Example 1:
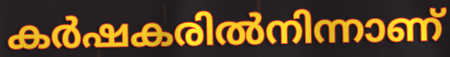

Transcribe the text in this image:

കർഷകരിൽനിന്നാണ്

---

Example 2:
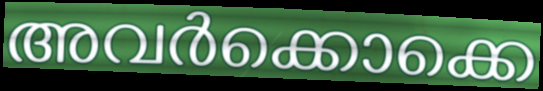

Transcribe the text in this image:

അവർക്കൊക്കെ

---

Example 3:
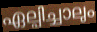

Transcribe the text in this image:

ഏല്പിച്ചാലും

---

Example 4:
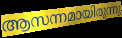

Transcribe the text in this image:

ആസന്നമായിരുന്നു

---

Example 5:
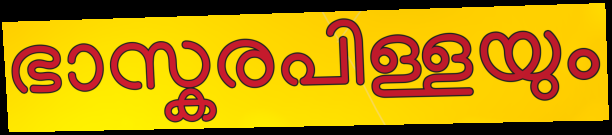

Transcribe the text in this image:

ഭാസ്കരപിള്ളയും